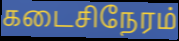
கடைசிநேரம்